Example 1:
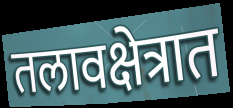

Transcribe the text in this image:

तलावक्षेत्रात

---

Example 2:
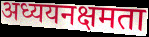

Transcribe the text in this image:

अध्ययनक्षमता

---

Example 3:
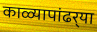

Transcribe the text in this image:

काळ्यापांढर्‍या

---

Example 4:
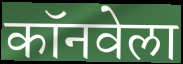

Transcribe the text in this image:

कॉनवेला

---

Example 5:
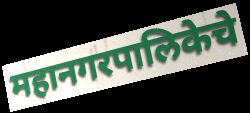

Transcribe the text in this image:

महानगरपालिकेचे